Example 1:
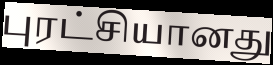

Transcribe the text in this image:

புரட்சியானது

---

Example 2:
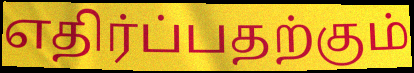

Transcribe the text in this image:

எதிர்ப்பதற்கும்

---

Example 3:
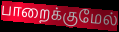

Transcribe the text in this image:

பாறைக்குமேல்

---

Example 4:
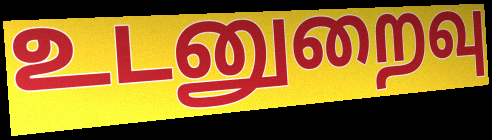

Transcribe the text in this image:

உடனுறைவு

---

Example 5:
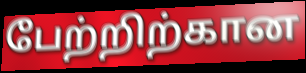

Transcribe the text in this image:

பேற்றிற்கான